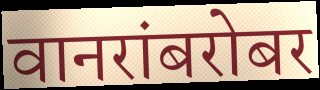
वानरांबरोबर